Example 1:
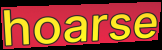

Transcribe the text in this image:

hoarse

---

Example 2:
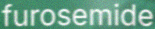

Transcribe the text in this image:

furosemide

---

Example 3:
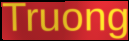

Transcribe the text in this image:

Truong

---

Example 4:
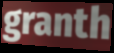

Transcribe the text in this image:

granth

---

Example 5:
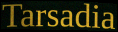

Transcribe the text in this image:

Tarsadia